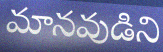
మానవుడిని